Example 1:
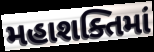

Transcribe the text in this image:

મહાશક્તિમાં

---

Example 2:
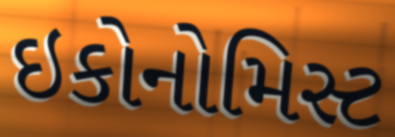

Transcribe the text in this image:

ઇકોનોમિસ્ટ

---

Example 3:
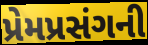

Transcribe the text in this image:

પ્રેમપ્રસંગની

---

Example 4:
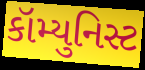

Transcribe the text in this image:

કૉમ્યુનિસ્ટ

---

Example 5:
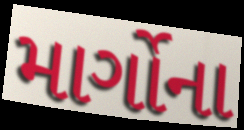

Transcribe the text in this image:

માર્ગોના